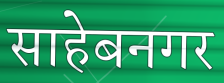
साहेबनगर